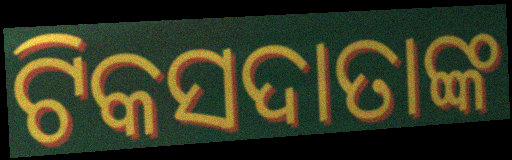
ଟିକସଦାତାଙ୍କ